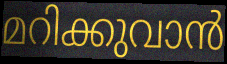
മറിക്കുവാൻ